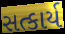
સત્કાર્ય